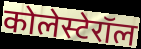
कोलेस्टेरॉल